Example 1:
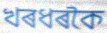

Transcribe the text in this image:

খৰধৰকৈ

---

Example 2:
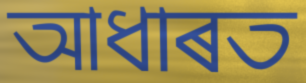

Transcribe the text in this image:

আধাৰত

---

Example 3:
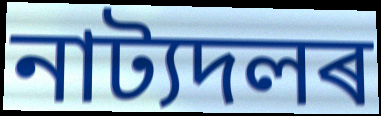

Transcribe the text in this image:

নাট্যদলৰ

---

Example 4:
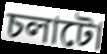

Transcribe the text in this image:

চলাটো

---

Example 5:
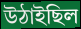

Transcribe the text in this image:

উঠাইছিল